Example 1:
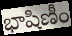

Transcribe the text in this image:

భాషిణీం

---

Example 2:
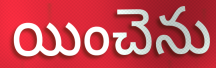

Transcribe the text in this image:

యించెను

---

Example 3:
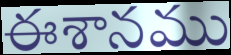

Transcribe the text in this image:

ఈశానము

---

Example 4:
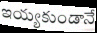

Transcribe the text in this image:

ఇయ్యకుండానే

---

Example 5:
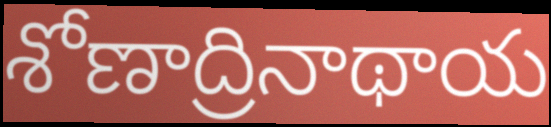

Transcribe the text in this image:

శోణాద్రినాథాయ